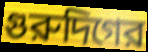
গুরুদিগের